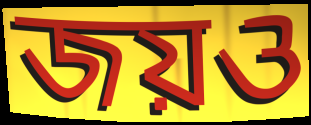
জয়ও